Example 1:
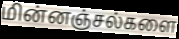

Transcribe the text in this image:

மின்னஞ்சல்களை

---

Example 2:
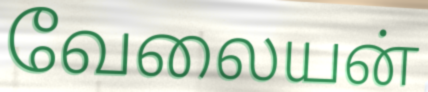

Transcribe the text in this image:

வேலையன்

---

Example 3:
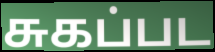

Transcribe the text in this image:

சுகப்பட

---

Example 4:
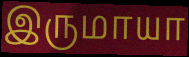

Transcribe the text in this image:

இருமாயா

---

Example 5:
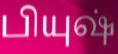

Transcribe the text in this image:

பியுஷ்